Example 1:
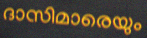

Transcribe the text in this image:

ദാസിമാരെയും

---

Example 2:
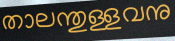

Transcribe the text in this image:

താലന്തുള്ളവനു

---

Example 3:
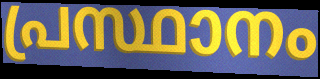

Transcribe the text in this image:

പ്രസ്ഥാനം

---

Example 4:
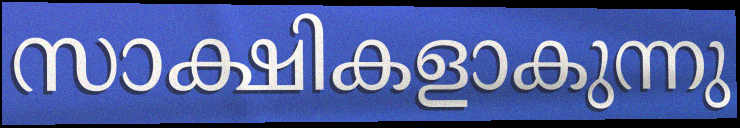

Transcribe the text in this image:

സാക്ഷികളാകുന്നു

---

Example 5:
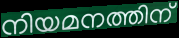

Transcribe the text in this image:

നിയമനത്തിന്